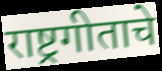
राष्ट्रगीताचे